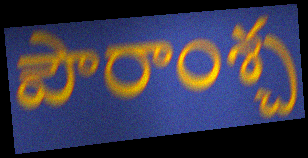
పౌరాంశ్చ